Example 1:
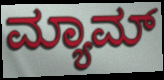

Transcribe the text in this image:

ಮ್ಯಾಮ್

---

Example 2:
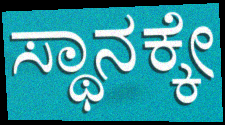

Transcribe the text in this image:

ಸ್ಥಾನಕ್ಕೇ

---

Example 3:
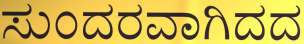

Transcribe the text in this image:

ಸುಂದರವಾಗಿದದ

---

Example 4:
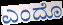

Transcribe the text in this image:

ಎಂದೊ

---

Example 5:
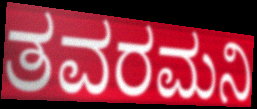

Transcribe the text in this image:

ತವರಮನಿ